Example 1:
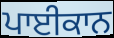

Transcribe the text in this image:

ਪਾਈਕਾਨ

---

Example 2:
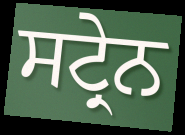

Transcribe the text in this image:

ਸਟ੍ਰੇਨ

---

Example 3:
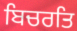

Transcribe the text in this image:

ਬਿਚਰਤਿ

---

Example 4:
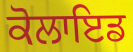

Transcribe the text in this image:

ਕੋਲਾਇਡ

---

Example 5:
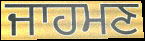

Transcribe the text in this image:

ਜਾਹਮਣ